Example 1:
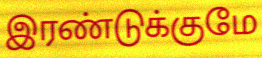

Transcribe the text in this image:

இரண்டுக்குமே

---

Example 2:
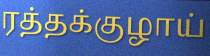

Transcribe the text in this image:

ரத்தக்குழாய்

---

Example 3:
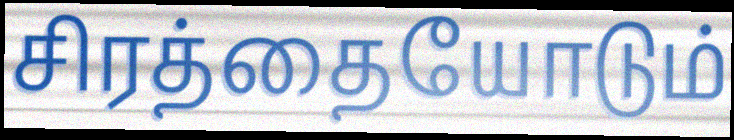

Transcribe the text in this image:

சிரத்தையோடும்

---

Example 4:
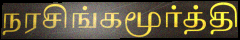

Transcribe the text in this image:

நரசிங்கமூர்த்தி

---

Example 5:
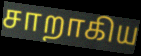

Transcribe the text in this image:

சாறாகிய